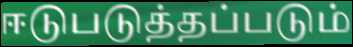
ஈடுபடுத்தப்படும்